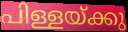
പിള്ളയ്ക്കു